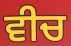
ਵੀਚ